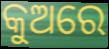
କୁଅରେ